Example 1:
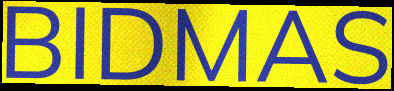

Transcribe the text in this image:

BIDMAS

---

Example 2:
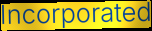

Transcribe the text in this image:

Incorporated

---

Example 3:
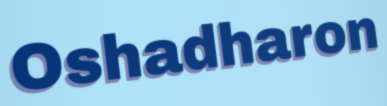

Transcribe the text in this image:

Oshadharon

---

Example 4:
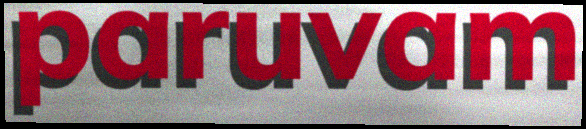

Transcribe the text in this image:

paruvam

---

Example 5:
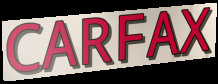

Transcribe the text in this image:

CARFAX